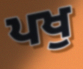
ਪਖੁ